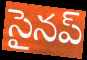
సైనప్